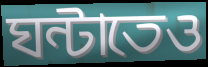
ঘন্টাতেও